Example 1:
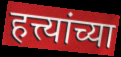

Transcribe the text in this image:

हत्त्यांच्या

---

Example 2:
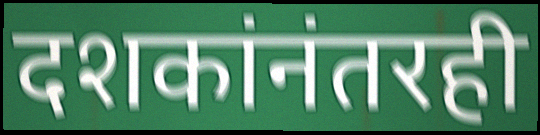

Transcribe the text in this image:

दशकांनंतरही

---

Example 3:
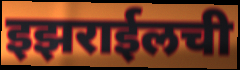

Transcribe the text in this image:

इझराईलची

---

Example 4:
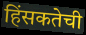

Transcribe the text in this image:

हिंसकतेची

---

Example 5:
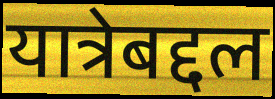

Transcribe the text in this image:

यात्रेबद्दल